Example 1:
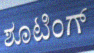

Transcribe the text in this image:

ಶೂಟಿಂಗ್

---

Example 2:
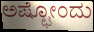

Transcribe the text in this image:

ಅಷ್ಟೋಂದು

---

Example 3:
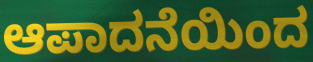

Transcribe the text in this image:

ಆಪಾದನೆಯಿಂದ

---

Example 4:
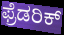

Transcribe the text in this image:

ಫ್ರೆಡರಿಕ್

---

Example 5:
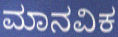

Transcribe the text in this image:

ಮಾನವಿಕ